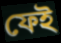
ফেই